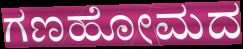
ಗಣಹೋಮದ